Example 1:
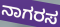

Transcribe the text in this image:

ನಾಗರಸ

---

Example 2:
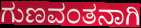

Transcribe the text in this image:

ಗುಣವಂತನಾಗಿ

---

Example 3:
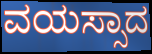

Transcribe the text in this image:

ವಯಸ್ಸಾದ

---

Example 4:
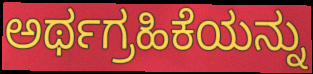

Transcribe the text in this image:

ಅರ್ಥಗ್ರಹಿಕೆಯನ್ನು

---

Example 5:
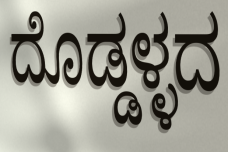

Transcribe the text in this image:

ದೊಡ್ಡಳ್ಳದ